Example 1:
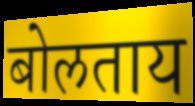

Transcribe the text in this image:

बोलताय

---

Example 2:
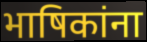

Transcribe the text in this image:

भाषिकांना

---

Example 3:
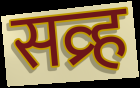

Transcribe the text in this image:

सव्र्ह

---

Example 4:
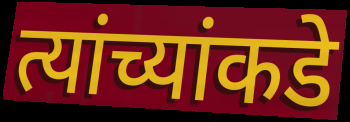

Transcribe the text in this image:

त्यांच्यांकडे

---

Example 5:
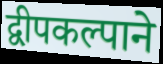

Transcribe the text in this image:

द्वीपकल्पाने